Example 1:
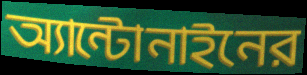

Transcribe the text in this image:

অ্যান্টোনাইনের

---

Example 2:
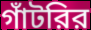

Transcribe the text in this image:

গাঁটরির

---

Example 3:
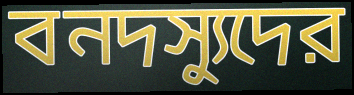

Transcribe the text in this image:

বনদস্যুদের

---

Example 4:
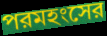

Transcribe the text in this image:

পরমহংসের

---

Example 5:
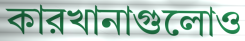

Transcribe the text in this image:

কারখানাগুলোও